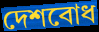
দেশবোধ